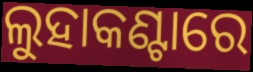
ଲୁହାକଣ୍ଟାରେ